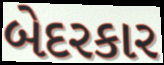
બેદરકાર